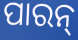
ପାରନ୍